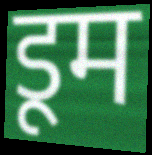
डूम